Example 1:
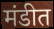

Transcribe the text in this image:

मंडीत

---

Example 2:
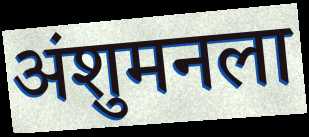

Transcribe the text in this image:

अंशुमनला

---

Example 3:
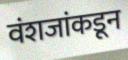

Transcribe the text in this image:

वंशजांकडून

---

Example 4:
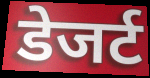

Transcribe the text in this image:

डेजर्ट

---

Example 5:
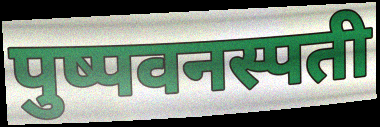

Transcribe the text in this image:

पुष्पवनस्पती